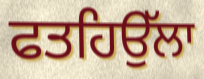
ਫਤਹਿਉੱਲਾ